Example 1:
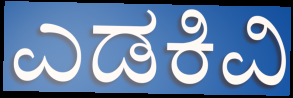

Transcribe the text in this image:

ಎಡಕಿವಿ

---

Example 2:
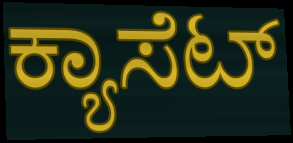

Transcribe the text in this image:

ಕ್ಯಾಸೆಟ್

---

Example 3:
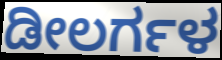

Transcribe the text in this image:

ಡೀಲರ್ಗಳ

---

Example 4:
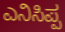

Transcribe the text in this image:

ಎನಿಸಿಪ್ಪ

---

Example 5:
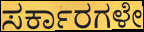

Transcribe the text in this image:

ಸರ್ಕಾರಗಳೇ